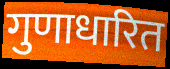
गुणाधारित